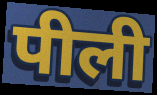
पीली